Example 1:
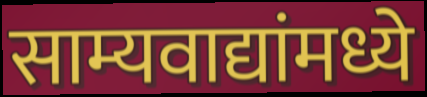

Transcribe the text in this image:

साम्यवाद्यांमध्ये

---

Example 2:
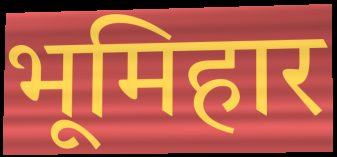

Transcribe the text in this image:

भूमिहार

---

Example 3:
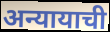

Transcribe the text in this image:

अन्यायाची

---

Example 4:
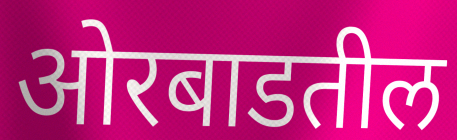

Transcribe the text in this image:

ओरबाडतील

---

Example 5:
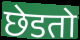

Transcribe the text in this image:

छेडतो